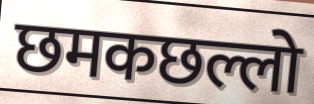
छमकछल्लो